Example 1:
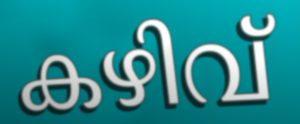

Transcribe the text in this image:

കഴിവ്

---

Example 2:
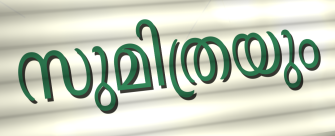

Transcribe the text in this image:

സുമിത്രയും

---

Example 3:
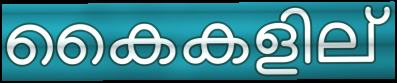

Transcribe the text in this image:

കൈകളില്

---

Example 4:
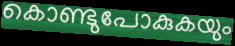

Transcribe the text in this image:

കൊണ്ടുപോകുകയും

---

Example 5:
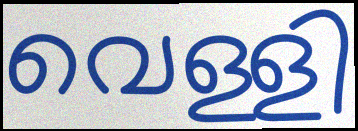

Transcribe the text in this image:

വെള്ളി